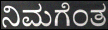
ನಿಮಗೆಂತ